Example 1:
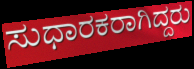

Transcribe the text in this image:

ಸುಧಾರಕರಾಗಿದ್ದರು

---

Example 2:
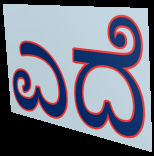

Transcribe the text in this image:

ಎದೆ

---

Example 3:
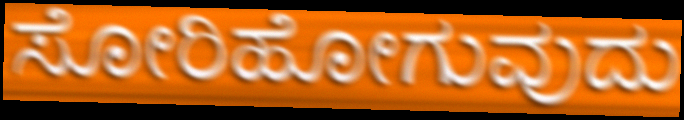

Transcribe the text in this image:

ಸೋರಿಹೋಗುವುದು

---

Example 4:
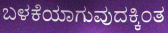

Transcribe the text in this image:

ಬಳಕೆಯಾಗುವುದಕ್ಕಿಂತ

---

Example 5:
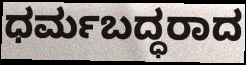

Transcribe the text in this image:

ಧರ್ಮಬದ್ಧರಾದ